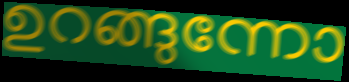
ഉറങ്ങുന്നോ